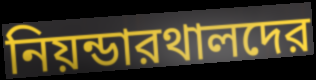
নিয়ন্ডারথালদের